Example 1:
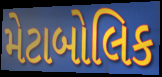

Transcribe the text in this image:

મેટાબોલિક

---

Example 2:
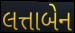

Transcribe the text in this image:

લત્તાબેન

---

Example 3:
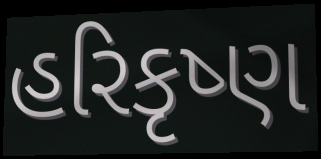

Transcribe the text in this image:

હરિકૃષ્ણ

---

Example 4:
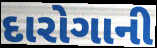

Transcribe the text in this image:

દારોગાની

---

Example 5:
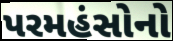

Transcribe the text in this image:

પરમહંસોનો